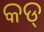
କଡ୍